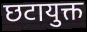
छटायुक्त